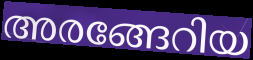
അരങ്ങേറിയ